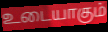
உடையாகும்